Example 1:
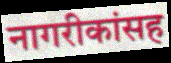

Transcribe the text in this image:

नागरीकांसह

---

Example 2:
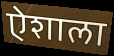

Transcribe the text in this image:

ऐशाला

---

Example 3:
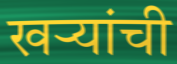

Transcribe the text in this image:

खऱ्यांची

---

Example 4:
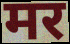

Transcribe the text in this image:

मर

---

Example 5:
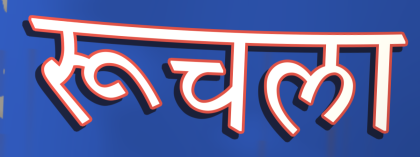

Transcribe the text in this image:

रूचला